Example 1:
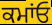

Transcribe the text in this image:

ਕਮਾਂਓ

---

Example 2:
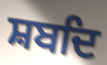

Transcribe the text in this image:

ਸ਼ਬਦਿ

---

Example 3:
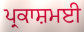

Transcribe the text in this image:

ਪ੍ਰਕਾਸ਼ਮਈ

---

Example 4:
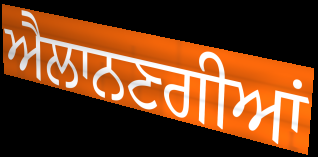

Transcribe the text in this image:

ਐਲਾਨਣਗੀਆਂ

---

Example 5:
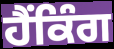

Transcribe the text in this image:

ਹੈਂਕਿੰਗ